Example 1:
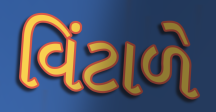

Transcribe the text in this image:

વિંટાળે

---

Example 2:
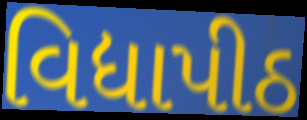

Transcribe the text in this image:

વિદ્યાપીઠ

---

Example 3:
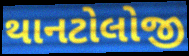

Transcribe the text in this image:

થાનટોલોજી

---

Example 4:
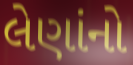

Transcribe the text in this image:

લેણાંનો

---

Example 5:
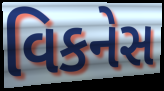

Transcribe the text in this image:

વિકનેસ